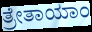
ತ್ರೇತಾಯಾಂ